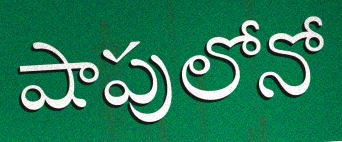
షాపులోనో